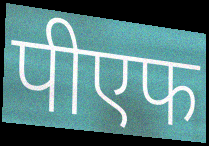
पीएफ